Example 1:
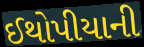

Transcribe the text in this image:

ઈથોપીયાની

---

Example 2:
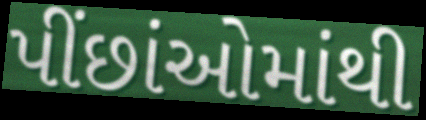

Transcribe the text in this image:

પીંછાંઓમાંથી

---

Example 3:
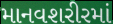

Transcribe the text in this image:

માનવશરીરમાં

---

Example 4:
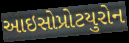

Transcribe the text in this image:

આઇસોપ્રોટયુરોન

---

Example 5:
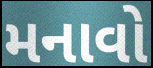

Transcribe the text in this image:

મનાવો